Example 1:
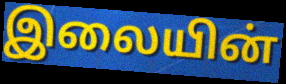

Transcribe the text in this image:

இலையின்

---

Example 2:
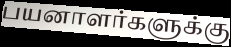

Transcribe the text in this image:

பயனாளர்களுக்கு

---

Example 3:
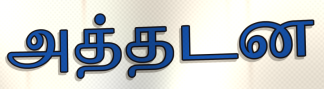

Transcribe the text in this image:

அத்தடன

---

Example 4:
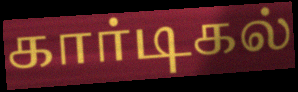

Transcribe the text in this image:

கார்டிகல்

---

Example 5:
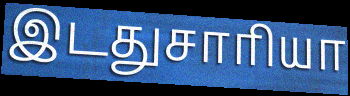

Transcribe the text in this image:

இடதுசாரியா